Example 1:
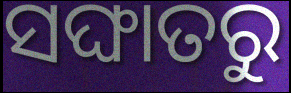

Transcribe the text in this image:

ସଙ୍ଘାତରୁ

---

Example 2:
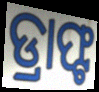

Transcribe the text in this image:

ଡ୍ରାଫ୍ଟ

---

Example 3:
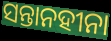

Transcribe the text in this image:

ସନ୍ତାନହୀନା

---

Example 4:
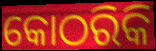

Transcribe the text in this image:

କୋଠରିକି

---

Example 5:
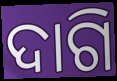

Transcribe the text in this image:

ଦାଗି